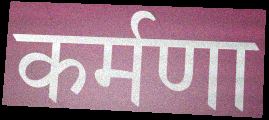
कर्मणा